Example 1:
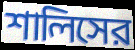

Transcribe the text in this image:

শালিসের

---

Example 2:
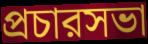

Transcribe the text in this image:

প্রচারসভা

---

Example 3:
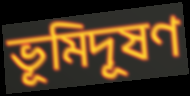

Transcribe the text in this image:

ভূমিদূষণ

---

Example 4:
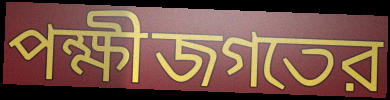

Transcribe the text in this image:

পক্ষীজগতের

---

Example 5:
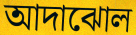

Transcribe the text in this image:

আদাঝোল